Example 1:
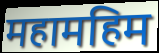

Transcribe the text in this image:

महामहिम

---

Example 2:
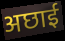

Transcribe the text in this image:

अछाई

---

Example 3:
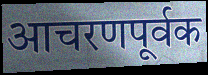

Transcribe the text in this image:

आचरणपूर्वक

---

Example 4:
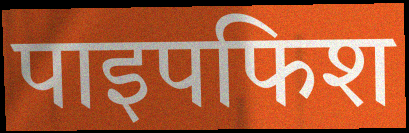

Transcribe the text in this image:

पाइपफिश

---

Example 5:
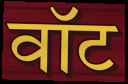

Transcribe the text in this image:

वॉट